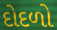
દોદળો